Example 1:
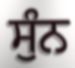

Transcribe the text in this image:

ਸੁੰਨ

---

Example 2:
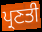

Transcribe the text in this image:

ਪ੍ਰਣਤੀ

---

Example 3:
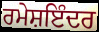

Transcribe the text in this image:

ਰਮੇਸ਼ਇੰਦਰ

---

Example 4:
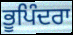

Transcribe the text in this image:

ਭੂਪਿੰਦਰਾ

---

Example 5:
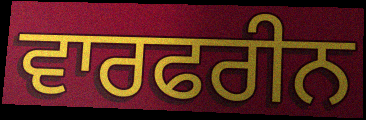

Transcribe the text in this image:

ਵਾਰਫਰੀਨ